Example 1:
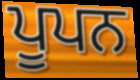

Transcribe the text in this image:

ਪੂਪਨ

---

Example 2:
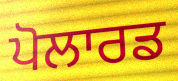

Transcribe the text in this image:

ਪੋਲਾਰਡ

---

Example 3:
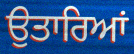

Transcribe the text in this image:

ਉਤਾਰਿਆਂ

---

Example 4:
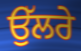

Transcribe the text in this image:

ਉੱਲਰੇ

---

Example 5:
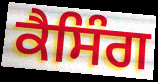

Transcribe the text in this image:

ਕੈਸਿੰਗ